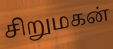
சிறுமகன்